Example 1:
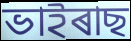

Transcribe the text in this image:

ভাইৰাছ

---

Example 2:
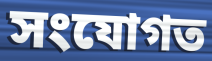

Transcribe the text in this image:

সংযোগত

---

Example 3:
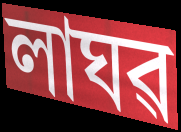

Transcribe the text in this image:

লাঘৱ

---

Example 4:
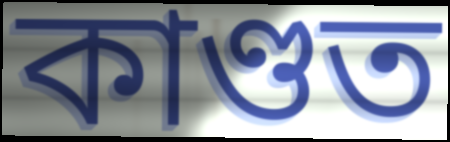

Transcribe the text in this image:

কাণ্ডত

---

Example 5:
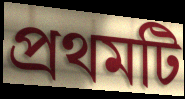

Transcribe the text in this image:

প্ৰথমটি